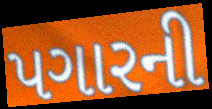
પગારની